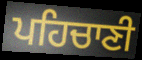
ਪਹਿਚਾਣੀ